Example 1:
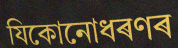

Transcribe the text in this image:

যিকোনোধৰণৰ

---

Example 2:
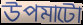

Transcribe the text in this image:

উপমাটো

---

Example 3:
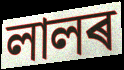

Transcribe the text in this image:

লালৰ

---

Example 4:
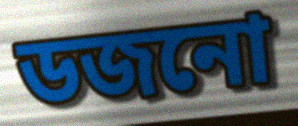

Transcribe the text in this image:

ডজনো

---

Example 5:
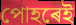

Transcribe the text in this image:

পোহৰেই